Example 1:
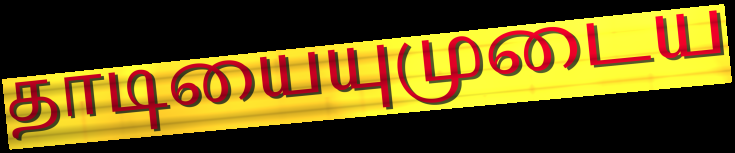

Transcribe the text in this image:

தாடியையுமுடைய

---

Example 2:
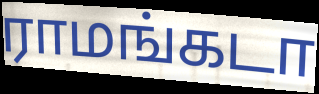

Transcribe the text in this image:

ராமங்கடா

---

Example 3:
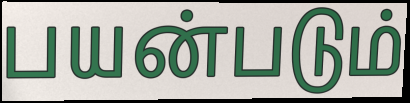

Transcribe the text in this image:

பயன்படும்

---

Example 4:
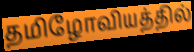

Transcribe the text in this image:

தமிழோவியத்தில்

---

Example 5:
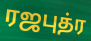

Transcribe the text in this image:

ரஜபுத்ர